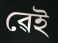
ৱেই